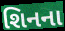
શિનના